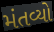
મંતવ્યો